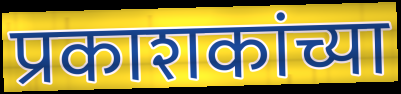
प्रकाशकांच्या